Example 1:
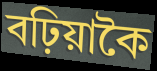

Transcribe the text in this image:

বঢ়িয়াকৈ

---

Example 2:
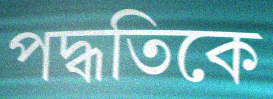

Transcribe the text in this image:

পদ্ধতিকে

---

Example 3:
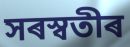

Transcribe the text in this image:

সৰস্বতীৰ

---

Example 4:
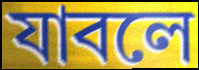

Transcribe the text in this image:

যাবলে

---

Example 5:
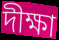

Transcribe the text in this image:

দীক্ষা